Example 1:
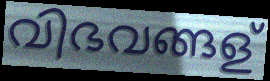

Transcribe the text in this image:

വിഭവങ്ങള്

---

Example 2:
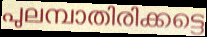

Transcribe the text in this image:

പുലമ്പാതിരിക്കട്ടെ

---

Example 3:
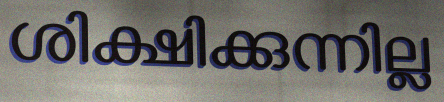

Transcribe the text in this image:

ശിക്ഷിക്കുന്നില്ല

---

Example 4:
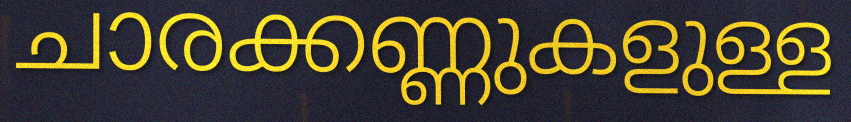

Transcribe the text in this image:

ചാരക്കണ്ണുകളുള്ള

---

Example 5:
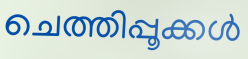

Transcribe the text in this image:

ചെത്തിപ്പൂക്കൾ